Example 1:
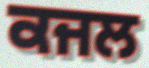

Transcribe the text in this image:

ਕਜਲ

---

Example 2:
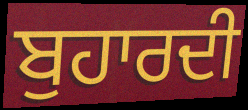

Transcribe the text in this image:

ਬੁਹਾਰਦੀ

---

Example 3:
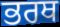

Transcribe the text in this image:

ਭਰਥ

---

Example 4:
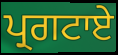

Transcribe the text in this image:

ਪ੍ਰਗਟਾਏ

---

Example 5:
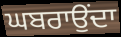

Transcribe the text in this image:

ਘਬਰਾਉਂਦਾ